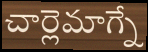
చార్లెమాగ్నే